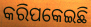
କରିପକେଇଛି